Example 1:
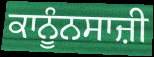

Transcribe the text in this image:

ਕਾਨੂੰਨਸਾਜ਼ੀ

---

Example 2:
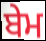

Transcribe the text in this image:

ਬੇਮ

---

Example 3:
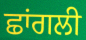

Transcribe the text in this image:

ਛਾਂਗਲੀ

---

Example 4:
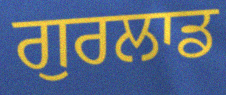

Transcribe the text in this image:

ਗੁਰਲਾਡ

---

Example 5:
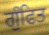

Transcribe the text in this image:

ਗੁੰਫਿਤ